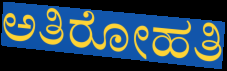
ಅತಿರೋಹತಿ